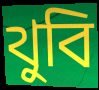
থুবি